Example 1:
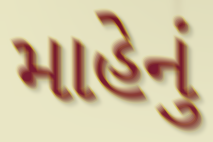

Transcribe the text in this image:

માહેનું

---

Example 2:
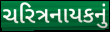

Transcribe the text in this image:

ચરિત્રનાયકનું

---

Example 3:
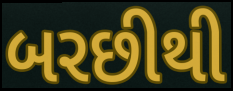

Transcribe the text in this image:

બરછીથી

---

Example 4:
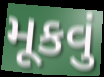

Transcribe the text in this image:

મૂકવું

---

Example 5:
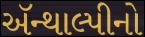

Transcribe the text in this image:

ઍન્થાલ્પીનો